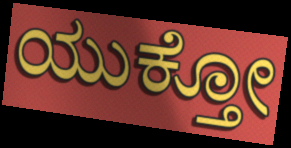
ಯುಕ್ತೋ